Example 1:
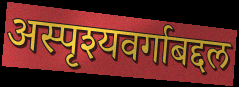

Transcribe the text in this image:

अस्पृश्यवर्गाबद्दल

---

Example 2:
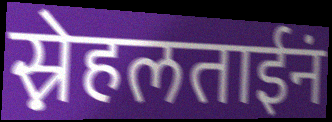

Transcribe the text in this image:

स्नेहलताईनं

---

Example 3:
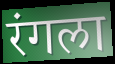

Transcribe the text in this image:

रंगला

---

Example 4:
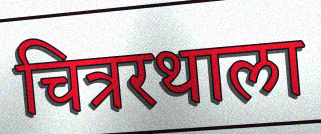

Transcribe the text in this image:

चित्ररथाला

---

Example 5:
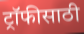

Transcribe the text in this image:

ट्रॉफीसाठी